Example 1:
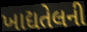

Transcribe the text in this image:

ખાદ્યતેલની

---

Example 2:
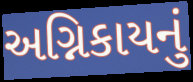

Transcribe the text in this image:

અગ્નિકાયનું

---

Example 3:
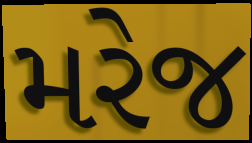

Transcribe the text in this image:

મરેજ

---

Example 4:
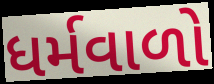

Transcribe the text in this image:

ધર્મવાળો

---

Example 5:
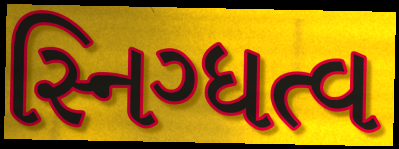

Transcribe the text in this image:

સ્નિગ્ધત્વ